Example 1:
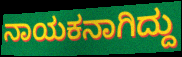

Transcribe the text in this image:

ನಾಯಕನಾಗಿದ್ದು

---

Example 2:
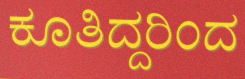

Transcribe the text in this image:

ಕೂತಿದ್ದರಿಂದ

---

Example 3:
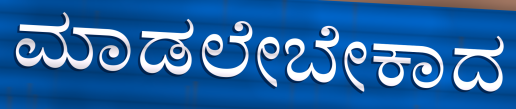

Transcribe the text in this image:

ಮಾಡಲೇಬೇಕಾದ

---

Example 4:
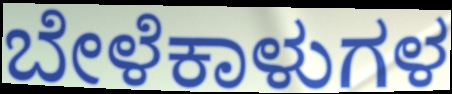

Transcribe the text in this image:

ಬೇಳೆಕಾಳುಗಳ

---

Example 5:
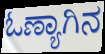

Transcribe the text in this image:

ಓಣ್ಯಾಗಿನ